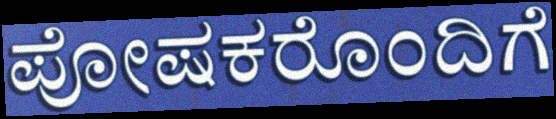
ಪೋಷಕರೊಂದಿಗೆ